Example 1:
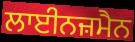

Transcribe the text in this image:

ਲਾਈਨਜ਼ਮੈਨ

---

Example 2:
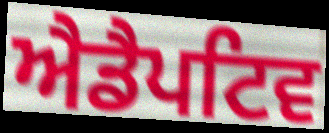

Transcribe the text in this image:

ਐਡੈਪਟਿਵ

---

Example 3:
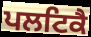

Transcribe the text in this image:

ਪਲਟਿਕੈ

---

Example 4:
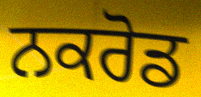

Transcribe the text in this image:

ਨਕਰੋਡ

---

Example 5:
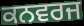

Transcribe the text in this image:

ਕਨਵਰਜ